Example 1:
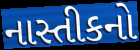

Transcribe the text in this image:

નાસ્તીકનો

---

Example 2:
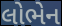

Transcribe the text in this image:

લોભેન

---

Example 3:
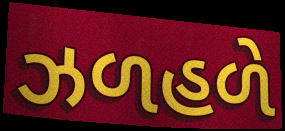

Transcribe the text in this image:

ઝળહળે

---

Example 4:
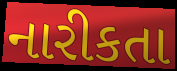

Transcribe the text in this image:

નારીકતા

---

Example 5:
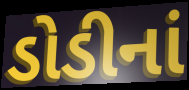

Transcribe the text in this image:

ડોડીનાં